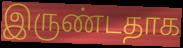
இருண்டதாக